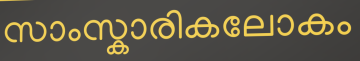
സാംസ്കാരികലോകം